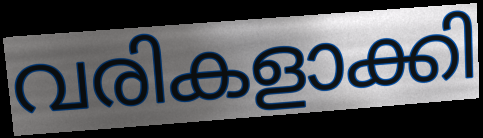
വരികളാക്കി